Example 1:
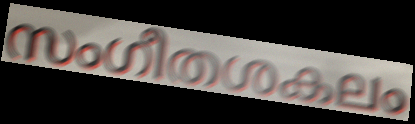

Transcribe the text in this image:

സംഗീതശകലം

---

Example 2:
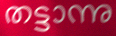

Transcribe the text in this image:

തട്ടാന്നു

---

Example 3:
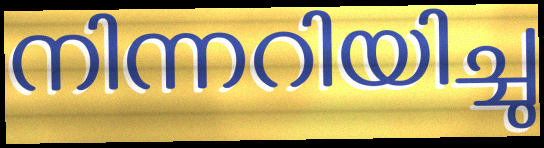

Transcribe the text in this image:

നിന്നറിയിച്ചു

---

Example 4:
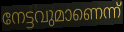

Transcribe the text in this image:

നേട്ടവുമാണെന്ന്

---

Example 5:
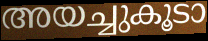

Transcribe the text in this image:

അയച്ചുകൂടാ